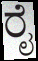
ರೈ